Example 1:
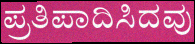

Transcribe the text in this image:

ಪ್ರತಿಪಾದಿಸಿದವು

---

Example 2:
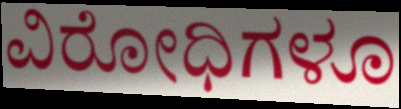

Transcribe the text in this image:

ವಿರೋಧಿಗಳೂ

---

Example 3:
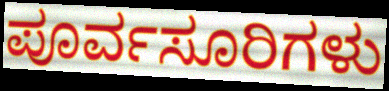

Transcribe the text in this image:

ಪೂರ್ವಸೂರಿಗಳು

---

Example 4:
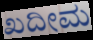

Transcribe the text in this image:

ಖದೀಮ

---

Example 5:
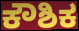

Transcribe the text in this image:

ಕೌಶಿಕ